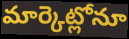
మార్కెట్లోనూ